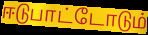
ஈடுபாட்டோடும்